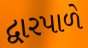
દ્વારપાળે